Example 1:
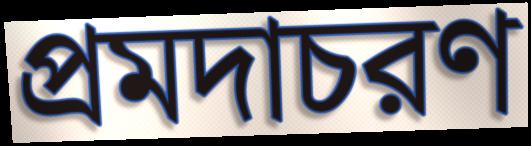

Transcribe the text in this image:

প্রমদাচরণ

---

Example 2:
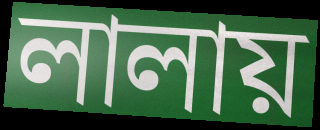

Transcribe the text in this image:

লালায়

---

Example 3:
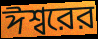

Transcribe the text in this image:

ঈশ্বরের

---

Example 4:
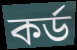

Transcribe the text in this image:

কর্ড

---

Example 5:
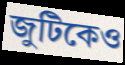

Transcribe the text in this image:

জুটিকেও